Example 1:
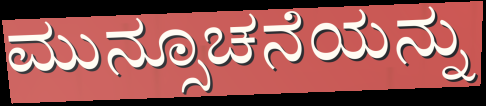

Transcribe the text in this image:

ಮುನ್ಸೂಚನೆಯನ್ನು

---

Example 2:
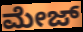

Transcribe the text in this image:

ಮೇಜ್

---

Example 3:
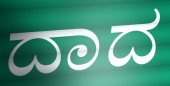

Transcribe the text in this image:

ದಾದ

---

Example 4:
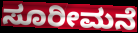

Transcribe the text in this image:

ಸೂರೀಮನೆ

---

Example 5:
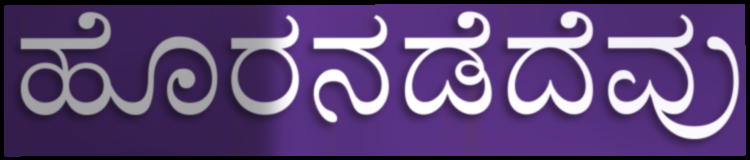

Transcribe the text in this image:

ಹೊರನಡೆದೆವು